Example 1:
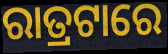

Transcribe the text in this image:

ରାତ୍ରଟାରେ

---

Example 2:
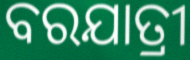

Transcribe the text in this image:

ବରଯାତ୍ରୀ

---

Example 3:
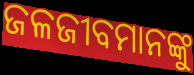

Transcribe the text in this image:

ଜଳଜୀବମାନଙ୍କୁ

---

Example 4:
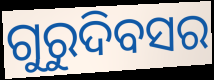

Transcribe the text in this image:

ଗୁରୁଦିବସର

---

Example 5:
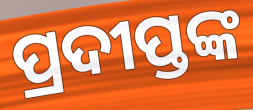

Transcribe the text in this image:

ପ୍ରଦୀପ୍ତଙ୍କ